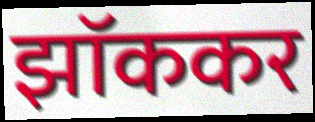
झॉककर